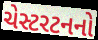
ચેસ્ટરટનનો